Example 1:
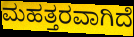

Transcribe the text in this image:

ಮಹತ್ತರವಾಗಿದೆ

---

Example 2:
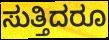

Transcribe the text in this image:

ಸುತ್ತಿದರೂ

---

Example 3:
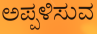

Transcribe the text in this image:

ಅಪ್ಪಳಿಸುವ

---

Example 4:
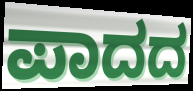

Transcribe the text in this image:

ಪಾದದ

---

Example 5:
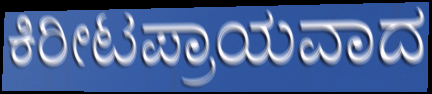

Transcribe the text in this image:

ಕಿರೀಟಪ್ರಾಯವಾದ